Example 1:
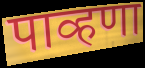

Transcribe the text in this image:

पाव्हणा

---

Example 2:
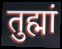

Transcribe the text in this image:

तुह्मां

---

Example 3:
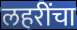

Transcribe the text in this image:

लहरींचा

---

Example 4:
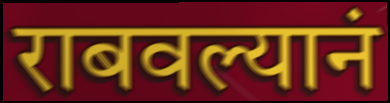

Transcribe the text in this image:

राबवल्यानं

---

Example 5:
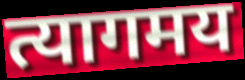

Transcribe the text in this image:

त्यागमय